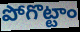
పోగొట్టాం